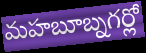
మహబూబ్నగర్లో